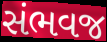
સંભવજ